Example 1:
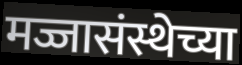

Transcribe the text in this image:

मज्जासंस्थेच्या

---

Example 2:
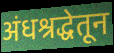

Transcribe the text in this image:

अंधश्रद्धेतून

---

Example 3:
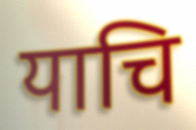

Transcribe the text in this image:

याचि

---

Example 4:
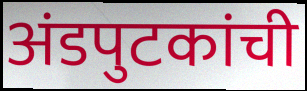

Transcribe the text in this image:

अंडपुटकांची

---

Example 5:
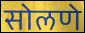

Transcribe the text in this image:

सोलणे